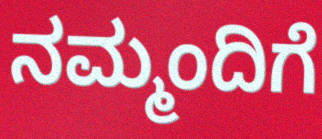
ನಮ್ಮಂದಿಗೆ